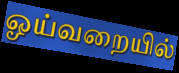
ஓய்வறையில்